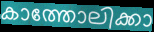
കാത്തോലിക്കാ